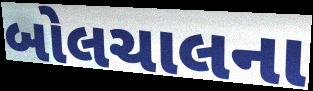
બોલચાલના